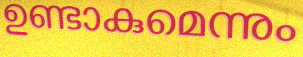
ഉണ്ടാകുമെന്നും